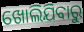
ଖୋଲିଯିବାରୁ